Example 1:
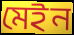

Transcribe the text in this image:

মেইন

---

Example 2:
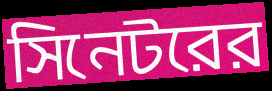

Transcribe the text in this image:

সিনেটরের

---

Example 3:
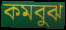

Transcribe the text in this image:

কমবুঝ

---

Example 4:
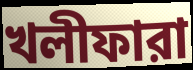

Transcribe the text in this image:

খলীফারা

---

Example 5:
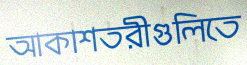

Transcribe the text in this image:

আকাশতরীগুলিতে